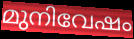
മുനിവേഷം